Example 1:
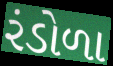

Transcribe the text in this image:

રંડોળા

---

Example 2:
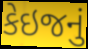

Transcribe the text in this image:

કેઇજનું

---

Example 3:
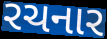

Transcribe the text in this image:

રચનાર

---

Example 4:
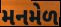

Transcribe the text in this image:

મનમેળ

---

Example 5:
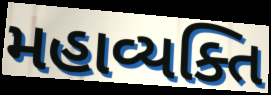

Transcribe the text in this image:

મહાવ્યક્તિ